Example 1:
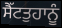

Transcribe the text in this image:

ਸੈੱਟਤੁਹਾਨੂੰ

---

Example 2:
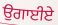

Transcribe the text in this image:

ਉਗਾਈਏ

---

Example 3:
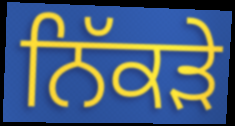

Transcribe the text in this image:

ਨਿੱਕੜੇ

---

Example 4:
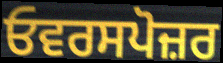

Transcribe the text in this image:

ਓਵਰਸਪੋਜ਼ਰ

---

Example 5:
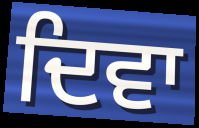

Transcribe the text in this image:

ਦਿਵਾ